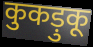
कुकड़ुकू